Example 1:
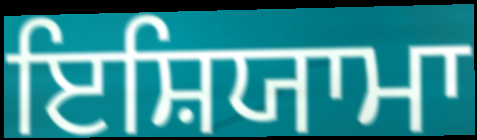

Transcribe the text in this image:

ਇਸ਼ਿਯਾਮਾ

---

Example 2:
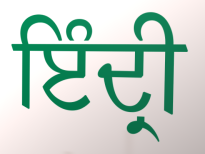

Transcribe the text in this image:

ਇੰਦ੍ਰੀ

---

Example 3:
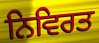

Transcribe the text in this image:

ਨਿਵਿਰਤ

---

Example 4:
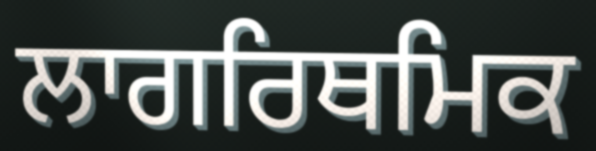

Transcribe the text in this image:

ਲਾਗਰਿਥਮਿਕ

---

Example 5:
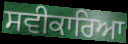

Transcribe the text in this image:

ਸਵੀਕਾਰਿਆ